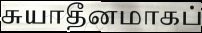
சுயாதீனமாகப்